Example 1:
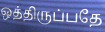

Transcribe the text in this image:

ஒத்திருப்பதே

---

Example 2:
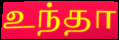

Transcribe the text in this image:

உந்தா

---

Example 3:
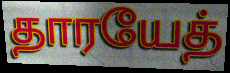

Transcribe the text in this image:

தாரயேத்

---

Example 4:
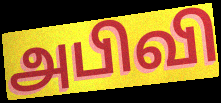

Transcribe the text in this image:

அபிவி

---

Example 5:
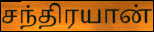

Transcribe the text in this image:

சந்திரயான்